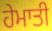
ਹੇਮਾਤੀ